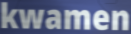
kwamen